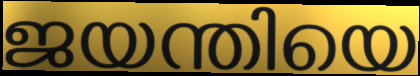
ജയന്തിയെ